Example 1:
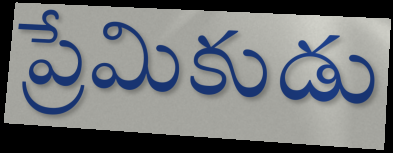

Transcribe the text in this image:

ప్రేమికుడు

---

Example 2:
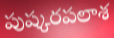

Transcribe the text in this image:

పుష్కరపలాశ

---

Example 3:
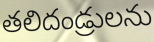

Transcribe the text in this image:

తలిదండ్రులను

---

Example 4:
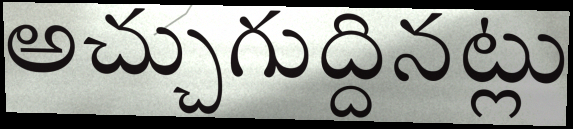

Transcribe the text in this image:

అచ్చుగుద్దినట్లు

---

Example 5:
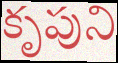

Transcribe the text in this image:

కృపుని